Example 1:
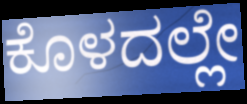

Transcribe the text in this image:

ಕೊಳದಲ್ಲೇ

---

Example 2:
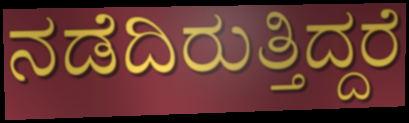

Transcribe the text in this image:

ನಡೆದಿರುತ್ತಿದ್ದರೆ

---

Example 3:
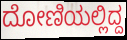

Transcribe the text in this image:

ದೋಣಿಯಲ್ಲಿದ್ದ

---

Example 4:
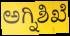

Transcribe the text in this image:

ಅಗ್ನಿಶಿಖೆ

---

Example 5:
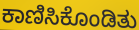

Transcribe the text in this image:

ಕಾಣಿಸಿಕೊಂಡಿತು